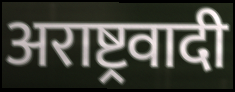
अराष्ट्रवादी